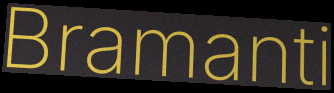
Bramanti